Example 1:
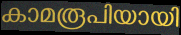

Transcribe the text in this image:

കാമരൂപിയായി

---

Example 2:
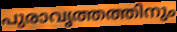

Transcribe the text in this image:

പുരാവൃത്തത്തിനും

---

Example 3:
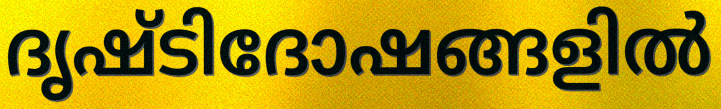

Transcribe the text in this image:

ദൃഷ്ടിദോഷങ്ങളിൽ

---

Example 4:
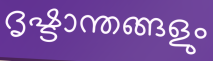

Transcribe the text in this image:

ദൃഷ്ടാന്തങ്ങളും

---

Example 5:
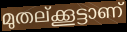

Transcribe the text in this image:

മുതല്ക്കൂട്ടാണ്